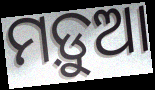
ମଡ଼ୁଆ